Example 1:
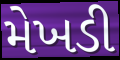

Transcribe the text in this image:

મેખડી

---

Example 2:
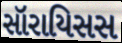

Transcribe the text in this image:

સૉરાયિસસ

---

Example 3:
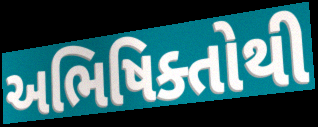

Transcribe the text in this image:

અભિષિક્તોથી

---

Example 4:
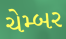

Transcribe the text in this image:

ચેમ્બર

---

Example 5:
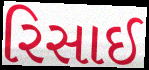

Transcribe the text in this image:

રિસાઈ